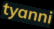
tyanni